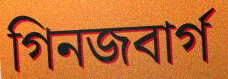
গিনজবার্গ